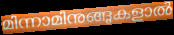
മിന്നാമിനുങ്ങുകളാൽ